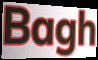
Bagh